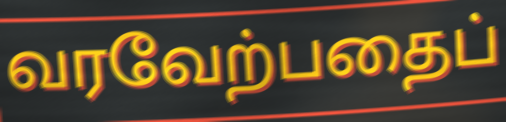
வரவேற்பதைப்